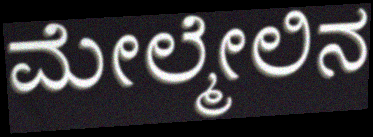
ಮೇಲ್ಮೇಲಿನ